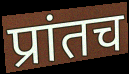
प्रांतच